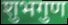
शुभगुण